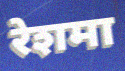
रेशमा